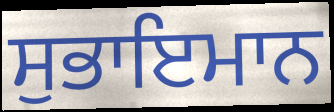
ਸੁਭਾਇਮਾਨ